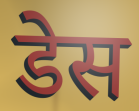
डेस